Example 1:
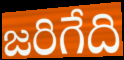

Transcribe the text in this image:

జరిగేది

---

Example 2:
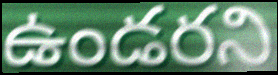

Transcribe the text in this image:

ఉండరని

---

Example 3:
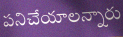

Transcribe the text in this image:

పనిచేయాలన్నారు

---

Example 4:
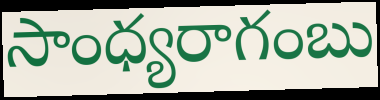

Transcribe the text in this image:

సాంధ్యరాగంబు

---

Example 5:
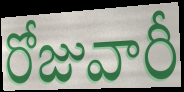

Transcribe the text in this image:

రోజువారీ